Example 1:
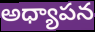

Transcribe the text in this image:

అధ్యాపన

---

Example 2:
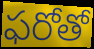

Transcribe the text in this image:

ఫరోతో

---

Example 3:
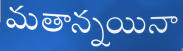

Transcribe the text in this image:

మతాన్నయినా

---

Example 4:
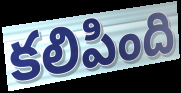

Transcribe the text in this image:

కలిపింది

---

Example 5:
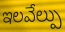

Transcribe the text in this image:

ఇలవేల్పు